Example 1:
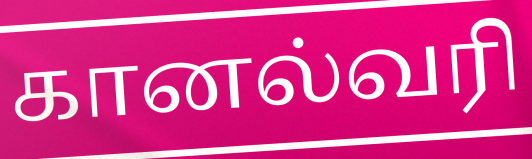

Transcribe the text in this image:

கானல்வரி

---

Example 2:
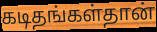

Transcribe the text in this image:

கடிதங்கள்தான்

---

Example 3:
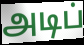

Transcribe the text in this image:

அடிப்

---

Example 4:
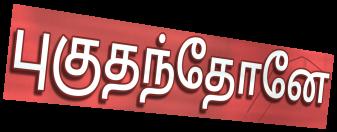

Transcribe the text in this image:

புகுதந்தோனே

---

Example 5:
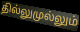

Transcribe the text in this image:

தில்லுமுல்லும்